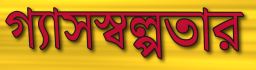
গ্যাসস্বল্পতার